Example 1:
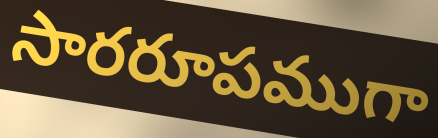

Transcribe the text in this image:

సారరూపముగా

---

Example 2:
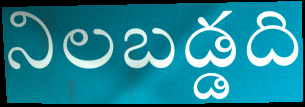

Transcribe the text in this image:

నిలబడ్డది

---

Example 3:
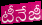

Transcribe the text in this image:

టీనేజీ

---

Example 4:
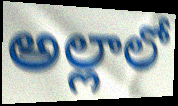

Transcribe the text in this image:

అల్లాలో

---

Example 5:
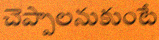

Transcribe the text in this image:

చెప్పాలనుకుంటే